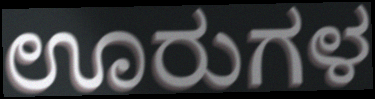
ಊರುಗಳ